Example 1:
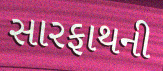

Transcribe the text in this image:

સારફાથની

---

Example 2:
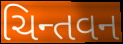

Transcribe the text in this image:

ચિન્તવન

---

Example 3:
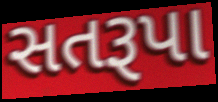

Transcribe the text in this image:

સતરૂપા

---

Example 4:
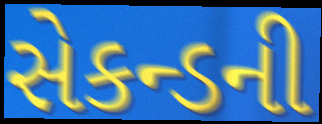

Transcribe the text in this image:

સેકન્ડની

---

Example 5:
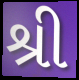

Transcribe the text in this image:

શ્રી